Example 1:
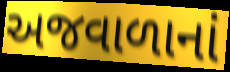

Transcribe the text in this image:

અજવાળાનાં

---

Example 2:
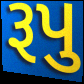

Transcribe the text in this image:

રૂપુ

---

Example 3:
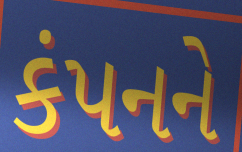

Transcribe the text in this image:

કંપનને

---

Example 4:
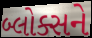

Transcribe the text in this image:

બ્લોક્સને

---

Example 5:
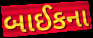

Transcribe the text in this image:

બાઈકના